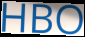
HBO